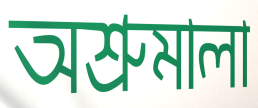
অশ্রুমালা